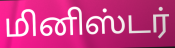
மினிஸ்டர்